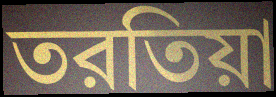
তরতিয়া